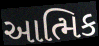
આત્મિક